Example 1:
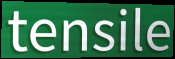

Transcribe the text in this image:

tensile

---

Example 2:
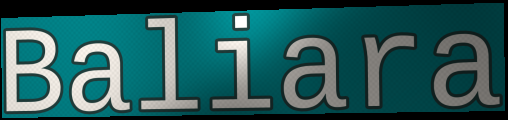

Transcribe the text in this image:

Baliara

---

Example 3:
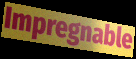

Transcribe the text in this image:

Impregnable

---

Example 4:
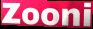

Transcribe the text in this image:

Zooni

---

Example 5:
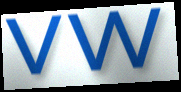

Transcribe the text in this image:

vw